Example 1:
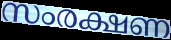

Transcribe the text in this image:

സംരക്ഷണ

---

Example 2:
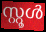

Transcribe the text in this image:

സ്റ്റൂൾ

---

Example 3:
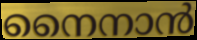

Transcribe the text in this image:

നൈനാൻ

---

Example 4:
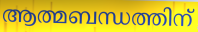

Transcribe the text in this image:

ആത്മബന്ധത്തിന്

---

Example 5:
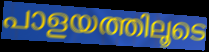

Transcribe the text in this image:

പാളയത്തിലൂടെ